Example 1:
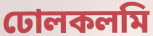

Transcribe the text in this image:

ঢোলকলমি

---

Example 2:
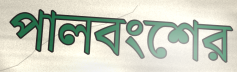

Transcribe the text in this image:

পালবংশের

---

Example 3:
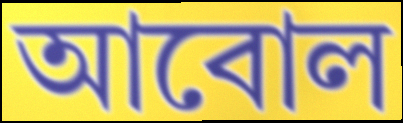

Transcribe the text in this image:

আবোল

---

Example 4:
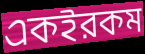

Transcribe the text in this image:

একইরকম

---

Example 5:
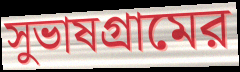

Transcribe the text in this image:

সুভাষগ্রামের